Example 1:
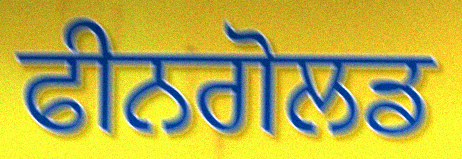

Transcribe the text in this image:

ਫੀਨਗੋਲਡ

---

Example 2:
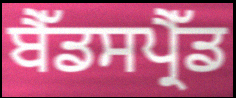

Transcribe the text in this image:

ਬੈੱਡਸਪ੍ਰੈੱਡ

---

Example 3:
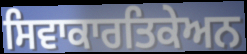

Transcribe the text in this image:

ਸਿਵਾਕਾਰਤਿਕੇਅਨ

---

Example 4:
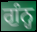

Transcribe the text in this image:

ਗੁੰਨ੍ਹ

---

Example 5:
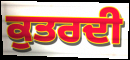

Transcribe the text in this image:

ਕੁਤਰਦੀ